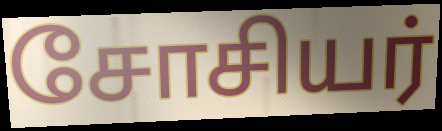
சோசியர்